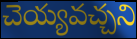
చెయ్యవచ్చని